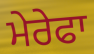
ਮੇਰੇਫਾ